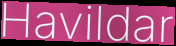
Havildar